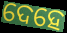
ଦେହେ